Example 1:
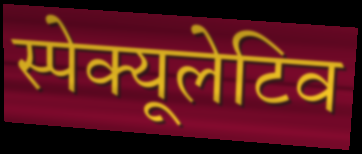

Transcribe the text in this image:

स्पेक्यूलेटिव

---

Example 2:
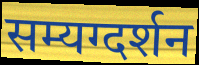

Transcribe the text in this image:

सम्‍यग्‍दर्शन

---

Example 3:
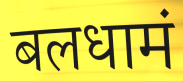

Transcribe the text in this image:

बलधामं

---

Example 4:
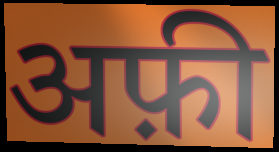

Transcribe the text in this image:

अफ़ी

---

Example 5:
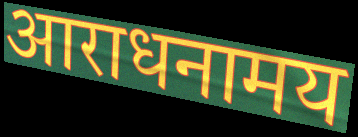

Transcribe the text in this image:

आराधनामय